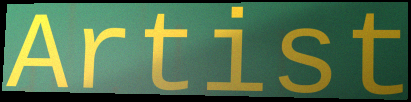
Artist